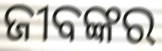
ଜୀବଙ୍କର